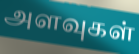
அளவுகள்